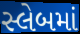
સ્લેબમાં